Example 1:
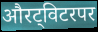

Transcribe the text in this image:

औरट्विटरपर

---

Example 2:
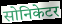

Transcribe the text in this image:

सोनिकेटर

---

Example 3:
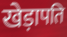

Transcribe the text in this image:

खेड़ापति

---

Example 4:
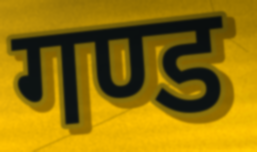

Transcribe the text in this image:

गण्ड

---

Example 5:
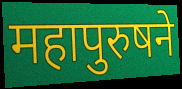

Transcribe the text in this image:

महापुरुषने